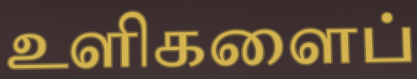
உளிகளைப்